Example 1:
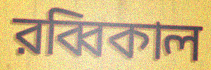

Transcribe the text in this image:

রব্বিকাল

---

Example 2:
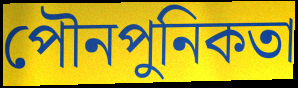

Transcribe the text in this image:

পৌনপুনিকতা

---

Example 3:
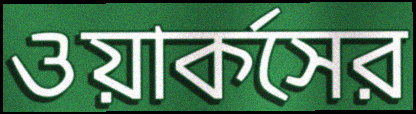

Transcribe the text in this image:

ওয়ার্কসের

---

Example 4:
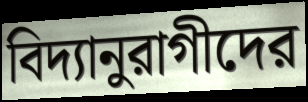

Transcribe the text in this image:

বিদ্যানুরাগীদের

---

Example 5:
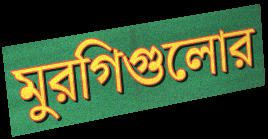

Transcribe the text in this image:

মুরগিগুলোর